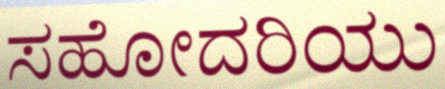
ಸಹೋದರಿಯು